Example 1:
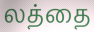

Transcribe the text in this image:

லத்தை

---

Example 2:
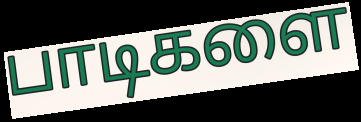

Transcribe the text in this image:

பாடிகளை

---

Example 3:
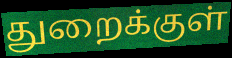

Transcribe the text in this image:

துறைக்குள்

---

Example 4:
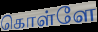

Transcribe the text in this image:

கொள்ளே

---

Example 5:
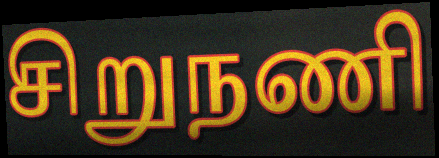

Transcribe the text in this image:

சிறுநணி